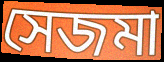
সেজমা